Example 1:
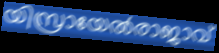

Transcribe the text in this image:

യിസ്രായേൽരാജാവ്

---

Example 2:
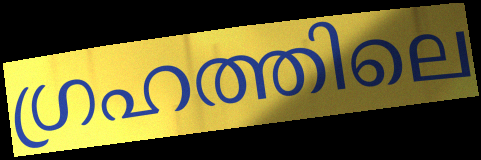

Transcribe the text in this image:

ഗ്രഹത്തിലെ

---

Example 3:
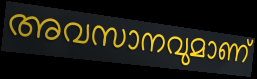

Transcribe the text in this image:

അവസാനവുമാണ്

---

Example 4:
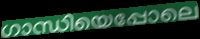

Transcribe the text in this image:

ഗാന്ധിയെപ്പോലെ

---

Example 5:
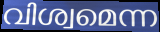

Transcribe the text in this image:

വിശ്വമെന്ന